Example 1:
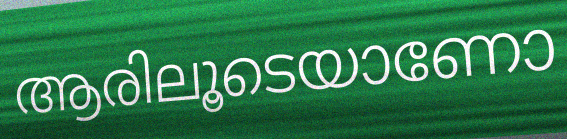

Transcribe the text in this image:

ആരിലൂടെയാണോ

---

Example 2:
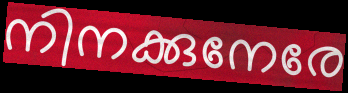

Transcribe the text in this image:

നിനക്കുനേരേ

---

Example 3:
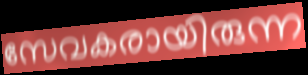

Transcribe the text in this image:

സേവകരായിരുന്ന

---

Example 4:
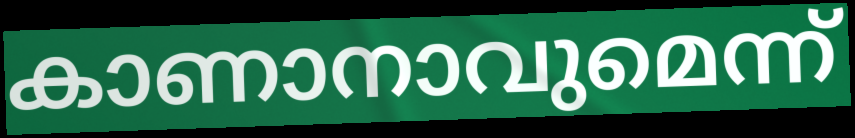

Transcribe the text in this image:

കാണാനാവുമെന്ന്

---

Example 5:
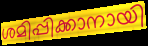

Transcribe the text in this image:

ശമിപ്പിക്കാനായി